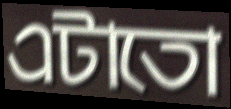
এটাতো